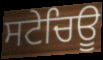
ਸਟੇਚਿਊ